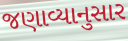
જણાવ્યાનુસાર